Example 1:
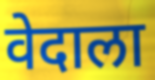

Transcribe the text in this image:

वेदाला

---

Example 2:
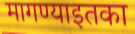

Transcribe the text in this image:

मागण्याइतका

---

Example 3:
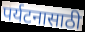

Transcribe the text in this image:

पर्यटनासाठी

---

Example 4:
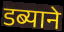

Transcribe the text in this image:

डब्याने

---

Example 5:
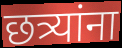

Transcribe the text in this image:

छत्र्यांना